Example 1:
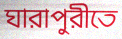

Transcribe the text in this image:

ঘারাপুরীতে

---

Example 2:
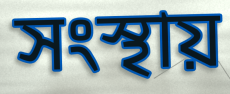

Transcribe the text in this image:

সংস্থায়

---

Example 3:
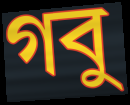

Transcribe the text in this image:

গবু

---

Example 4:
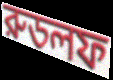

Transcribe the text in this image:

রুডলফ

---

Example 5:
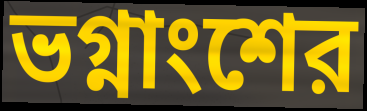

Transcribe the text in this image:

ভগ্নাংশের